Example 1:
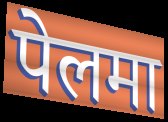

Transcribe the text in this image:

पेलमा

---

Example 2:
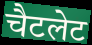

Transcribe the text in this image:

चैटलेट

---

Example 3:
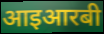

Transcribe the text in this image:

आइआरबी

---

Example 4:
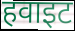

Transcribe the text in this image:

हवाइट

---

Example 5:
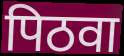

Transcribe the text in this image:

पिठवा